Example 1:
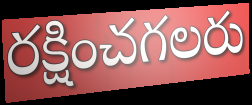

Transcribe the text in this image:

రక్షించగలరు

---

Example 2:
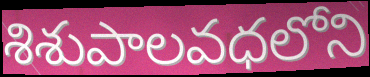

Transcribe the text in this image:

శిశుపాలవధలోని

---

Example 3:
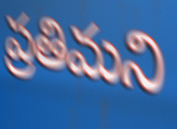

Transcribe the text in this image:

ప్రతిమని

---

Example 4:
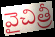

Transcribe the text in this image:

వైచిత్రీ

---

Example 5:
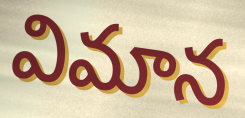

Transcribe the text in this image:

విమాన